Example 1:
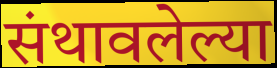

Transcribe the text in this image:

संथावलेल्या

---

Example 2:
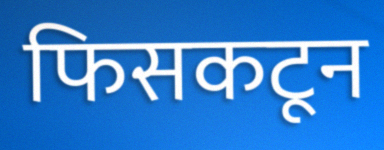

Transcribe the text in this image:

फिसकटून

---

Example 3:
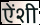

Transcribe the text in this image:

ऐंशी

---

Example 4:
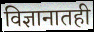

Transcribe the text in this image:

विज्ञानातही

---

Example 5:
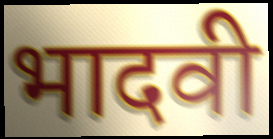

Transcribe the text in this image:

भादवी